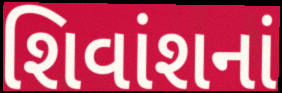
શિવાંશનાં